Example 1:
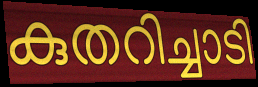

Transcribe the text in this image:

കുതറിച്ചാടി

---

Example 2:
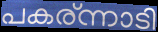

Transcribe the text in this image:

പകര്ന്നാടി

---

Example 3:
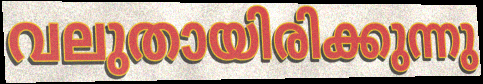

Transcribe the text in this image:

വലുതായിരിക്കുന്നു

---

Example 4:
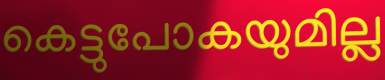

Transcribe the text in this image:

കെട്ടുപോകയുമില്ല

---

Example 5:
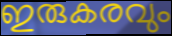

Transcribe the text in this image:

ഇരുകരവും